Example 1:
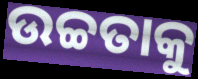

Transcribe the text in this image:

ଉଚ୍ଚତାକୁ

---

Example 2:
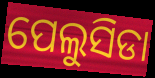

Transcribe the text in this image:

ପେଲୁସିଡା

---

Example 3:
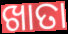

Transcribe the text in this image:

ଖାତା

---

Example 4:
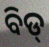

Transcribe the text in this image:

ବିଡ୍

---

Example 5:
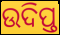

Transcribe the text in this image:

ଉଦିପ୍ତ